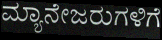
ಮ್ಯಾನೇಜರುಗಳಿಗೆ